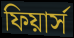
ফিয়ার্স